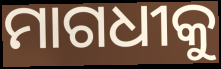
ମାଗଧୀକୁ